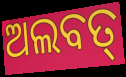
ଅଲବତ୍